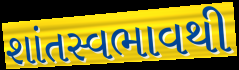
શાંતસ્વભાવથી